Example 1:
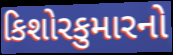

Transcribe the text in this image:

કિશોરકુમારનો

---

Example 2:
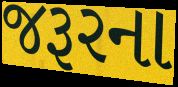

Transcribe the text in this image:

જરૂરના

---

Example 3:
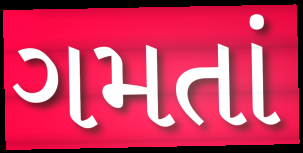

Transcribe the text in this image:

ગમતાં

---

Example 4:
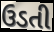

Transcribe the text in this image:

ઉડતી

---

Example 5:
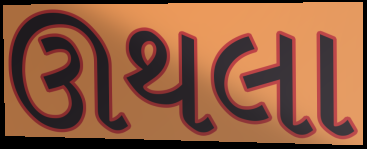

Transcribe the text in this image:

ઊથલા